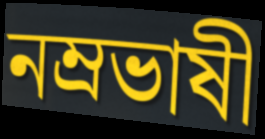
নম্রভাষী